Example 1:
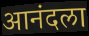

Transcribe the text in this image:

आनंदला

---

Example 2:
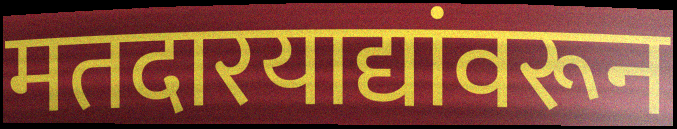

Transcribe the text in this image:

मतदारयाद्यांवरून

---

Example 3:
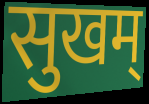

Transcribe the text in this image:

सुखम्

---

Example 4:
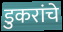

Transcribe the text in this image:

डुकरांचे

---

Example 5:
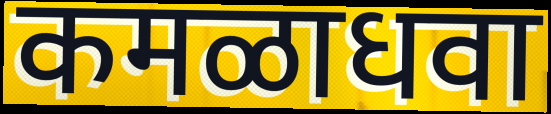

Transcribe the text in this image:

कमळाधवा